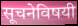
सूचनेविषयी